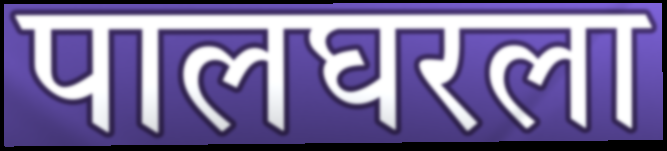
पालघरला